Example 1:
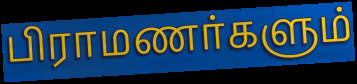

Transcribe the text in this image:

பிராமணர்களும்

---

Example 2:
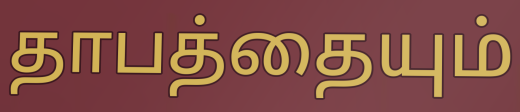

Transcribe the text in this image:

தாபத்தையும்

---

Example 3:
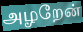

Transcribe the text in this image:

அழறேன்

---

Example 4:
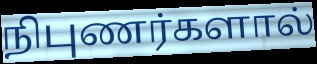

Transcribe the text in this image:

நிபுணர்களால்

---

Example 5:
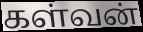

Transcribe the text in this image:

கள்வன்